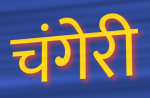
चंगेरी